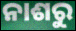
ନାଶରୁ